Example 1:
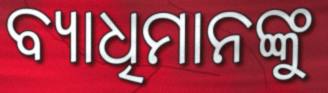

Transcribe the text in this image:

ବ୍ୟାଧିମାନଙ୍କୁ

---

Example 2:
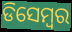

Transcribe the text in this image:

ଡିସେମ୍ୱର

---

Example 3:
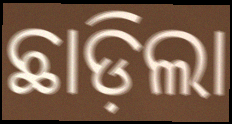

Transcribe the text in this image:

ଛାଡ଼ିଲା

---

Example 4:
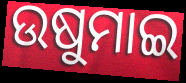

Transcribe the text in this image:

ଉଷୁମାଇ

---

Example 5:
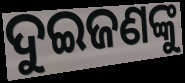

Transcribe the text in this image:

ଦୁଇଜଣଙ୍କୁ